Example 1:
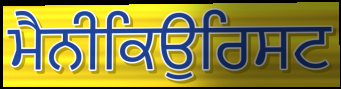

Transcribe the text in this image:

ਮੈਨੀਕਿਉਰਿਸਟ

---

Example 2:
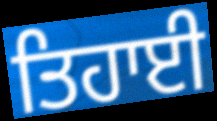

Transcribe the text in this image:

ਤਿਹਾਈ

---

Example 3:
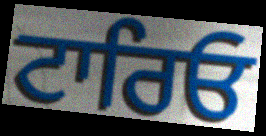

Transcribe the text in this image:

ਟਾਰਿਓ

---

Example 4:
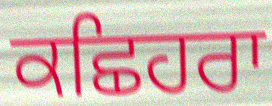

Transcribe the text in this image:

ਕਛਿਹਰਾ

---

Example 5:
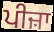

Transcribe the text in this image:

ਪੀਜ਼ਾ